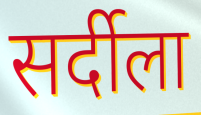
सर्दीला